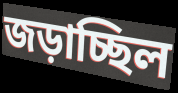
জড়াচ্ছিল